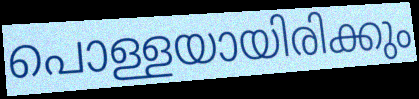
പൊള്ളയായിരിക്കും